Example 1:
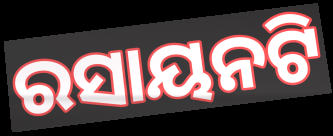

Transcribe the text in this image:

ରସାୟନଟି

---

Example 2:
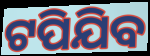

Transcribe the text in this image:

ଟପିଯିବ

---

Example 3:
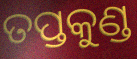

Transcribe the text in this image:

ତପ୍ତକୁଣ୍ଡ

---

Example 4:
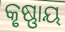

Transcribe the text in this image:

କୃଷ୍ଣାୟ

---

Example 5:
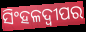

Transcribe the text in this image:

ସିଂହଳଦ୍ୱୀପର